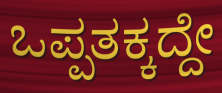
ಒಪ್ಪತಕ್ಕದ್ದೇ